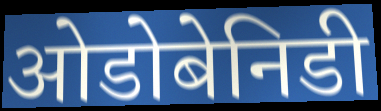
ओडोबेनिडी